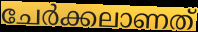
ചേർക്കലാണത്